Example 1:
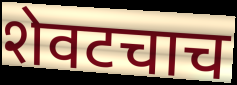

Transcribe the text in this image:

शेवटचाच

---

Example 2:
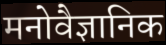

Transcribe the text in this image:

मनोवैज्ञानिक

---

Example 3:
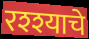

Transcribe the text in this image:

रश्श्याचे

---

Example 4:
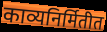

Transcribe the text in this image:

काव्यनिर्मितीत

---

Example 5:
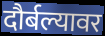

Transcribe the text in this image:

दौर्बल्यावर